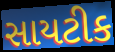
સાયટીક